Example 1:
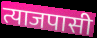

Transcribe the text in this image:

त्याजपासी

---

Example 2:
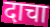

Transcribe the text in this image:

दाचा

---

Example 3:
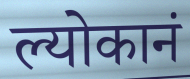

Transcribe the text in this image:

ल्योकानं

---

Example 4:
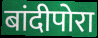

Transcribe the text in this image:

बांदीपोरा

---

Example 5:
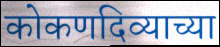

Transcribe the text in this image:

कोकणदिव्याच्या